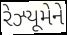
રેઝ્યૂમેને